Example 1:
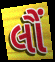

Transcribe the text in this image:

લૌં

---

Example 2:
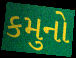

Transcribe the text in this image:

કમુનો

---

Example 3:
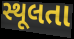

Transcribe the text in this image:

સ્થૂલતા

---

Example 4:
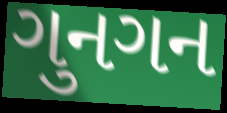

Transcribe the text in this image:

ગુનગન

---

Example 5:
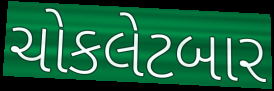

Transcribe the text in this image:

ચોકલેટબાર